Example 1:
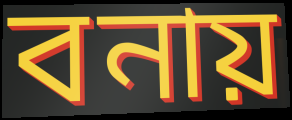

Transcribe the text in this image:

বনায়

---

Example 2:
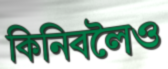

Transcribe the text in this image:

কিনিবলৈও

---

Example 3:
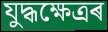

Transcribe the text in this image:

যুদ্ধক্ষেত্ৰৰ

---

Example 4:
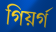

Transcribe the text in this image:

গিয়ৰ্গ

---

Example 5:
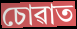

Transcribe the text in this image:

চোৱাত